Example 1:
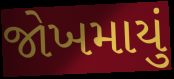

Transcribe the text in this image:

જોખમાયું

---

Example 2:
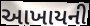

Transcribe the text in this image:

આખાયની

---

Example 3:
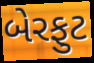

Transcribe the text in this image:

બેરફુટ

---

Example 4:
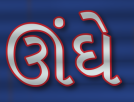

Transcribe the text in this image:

ઊંઘે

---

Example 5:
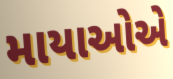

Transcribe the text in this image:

માયાઓએ